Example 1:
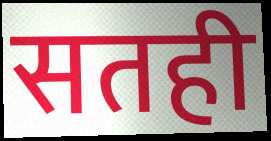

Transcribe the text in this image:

सतही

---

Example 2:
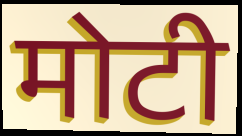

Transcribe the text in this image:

मोटी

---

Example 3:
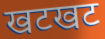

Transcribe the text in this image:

खटखट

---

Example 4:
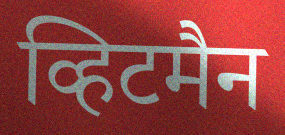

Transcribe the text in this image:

व्हिटमैन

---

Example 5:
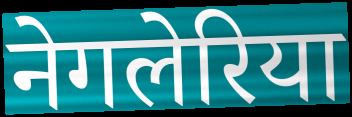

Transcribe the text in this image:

नेगलेरिया